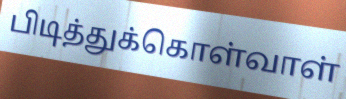
பிடித்துக்கொள்வாள்